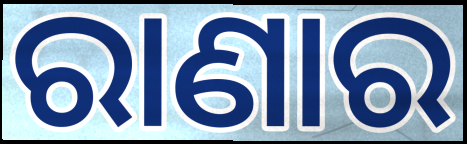
ରାଣାର